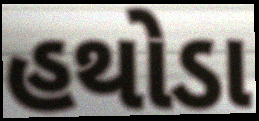
હથોડા